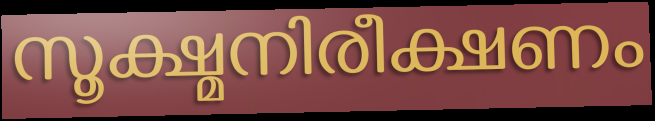
സൂക്ഷ്മനിരീക്ഷണം